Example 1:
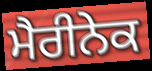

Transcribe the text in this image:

ਮੈਰੀਨੇਕ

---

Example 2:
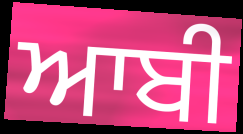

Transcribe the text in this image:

ਆਬੀ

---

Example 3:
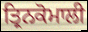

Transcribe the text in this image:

ਤ੍ਰਿਨਕੋਮਾਲੀ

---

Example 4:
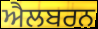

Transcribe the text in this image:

ਐਲਬਰਨ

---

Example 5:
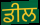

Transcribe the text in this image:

ਡੀਲ